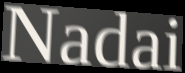
Nadai